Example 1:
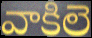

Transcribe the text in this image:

వాకిలె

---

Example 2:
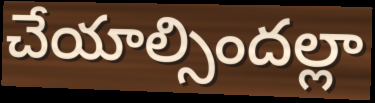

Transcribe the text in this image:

చేయాల్సిందల్లా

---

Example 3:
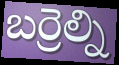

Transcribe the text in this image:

బర్రెల్ని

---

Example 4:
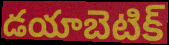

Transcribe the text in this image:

డయాబెటిక్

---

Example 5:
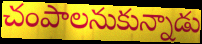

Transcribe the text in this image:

చంపాలనుకున్నాడు